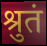
श्रुतं